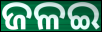
ଜଳଇ